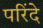
परिंदे